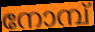
നോമ്പ്